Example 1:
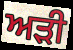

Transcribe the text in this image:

ਅੜੀ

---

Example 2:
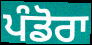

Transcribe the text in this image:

ਪੰਡੋਰਾ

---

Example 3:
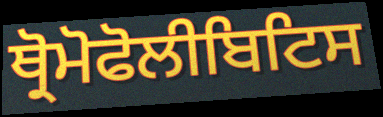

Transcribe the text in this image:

ਥ੍ਰੋਮੋਫੋਲੀਬਿਟਿਸ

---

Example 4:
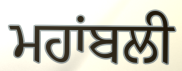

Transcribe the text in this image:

ਮਹਾਂਬਲੀ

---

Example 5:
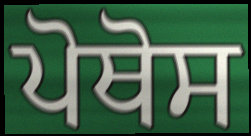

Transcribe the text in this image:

ਪੋਥੋਸ